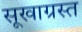
सूखाग्रस्त